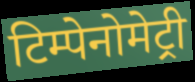
टिम्पेनोमेट्री